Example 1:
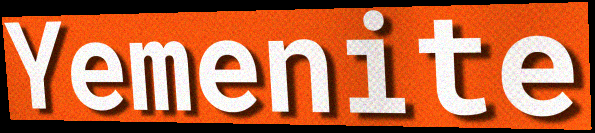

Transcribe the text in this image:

Yemenite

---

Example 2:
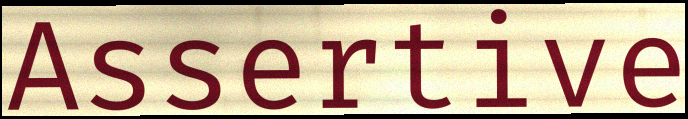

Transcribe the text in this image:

Assertive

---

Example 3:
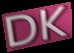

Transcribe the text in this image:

DK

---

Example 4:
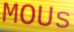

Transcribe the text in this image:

MOUs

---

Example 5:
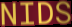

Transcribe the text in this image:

NIDS